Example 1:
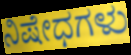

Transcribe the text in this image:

ನಿಷೇಧಗಳು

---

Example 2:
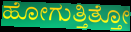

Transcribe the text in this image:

ಹೋಗುತ್ತಿತ್ತೋ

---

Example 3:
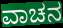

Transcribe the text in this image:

ವಾಚನ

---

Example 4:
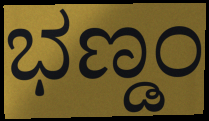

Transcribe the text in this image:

ಭಣ್ಡಂ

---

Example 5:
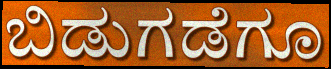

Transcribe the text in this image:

ಬಿಡುಗಡೆಗೂ